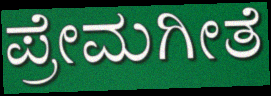
ಪ್ರೇಮಗೀತೆ